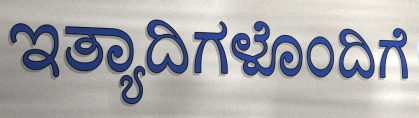
ಇತ್ಯಾದಿಗಳೊಂದಿಗೆ